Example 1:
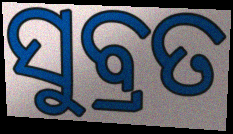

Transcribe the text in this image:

ସୁବ୍ରତ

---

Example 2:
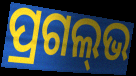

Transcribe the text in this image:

ପ୍ରଗଲ୍‌ଭ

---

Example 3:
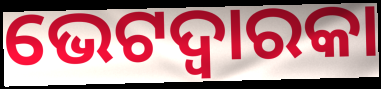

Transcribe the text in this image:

ଭେଟଦ୍ୱାରକା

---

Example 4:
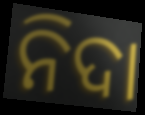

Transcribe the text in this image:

ନିଦା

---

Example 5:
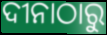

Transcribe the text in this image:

ଦୀନାଠାରୁ